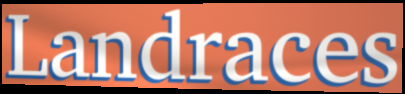
Landraces